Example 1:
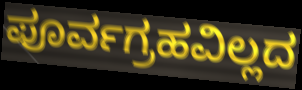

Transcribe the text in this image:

ಪೂರ್ವಗ್ರಹವಿಲ್ಲದ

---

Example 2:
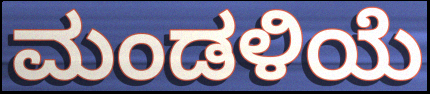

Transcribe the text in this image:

ಮಂಡಳಿಯೆ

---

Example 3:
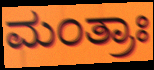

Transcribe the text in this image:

ಮಂತ್ರಾಃ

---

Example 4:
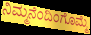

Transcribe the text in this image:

ನಿಮ್ಮನೆಂದಿಂಗೊಮ್ಮೆ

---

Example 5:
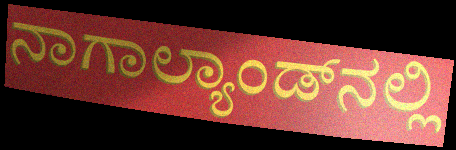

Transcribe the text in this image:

ನಾಗಾಲ್ಯಾಂಡ್‌ನಲ್ಲಿ